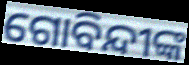
ଗୋବିନ୍ଦୀଙ୍କ